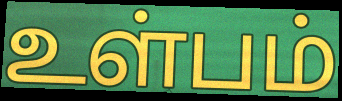
உள்பம்